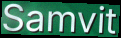
Samvit